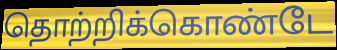
தொற்றிக்கொண்டே